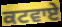
ਕਟਵਾਏ